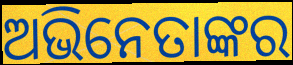
ଅଭିନେତାଙ୍କର